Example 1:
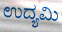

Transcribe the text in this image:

ಉದ್ಯಮಿ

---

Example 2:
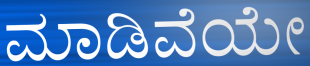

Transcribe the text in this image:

ಮಾಡಿವೆಯೇ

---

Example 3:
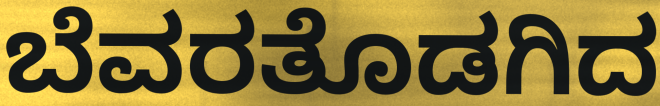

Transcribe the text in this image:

ಬೆವರತೊಡಗಿದ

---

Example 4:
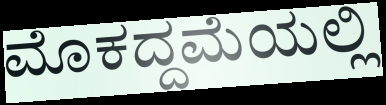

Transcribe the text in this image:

ಮೊಕದ್ದಮೆಯಲ್ಲಿ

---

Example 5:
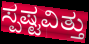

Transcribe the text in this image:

ಸ್ಪಷ್ಟವಿತ್ತು